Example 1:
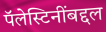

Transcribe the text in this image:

पॅलेस्टिनींबद्दल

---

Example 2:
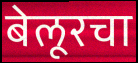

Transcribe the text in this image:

बेलूरचा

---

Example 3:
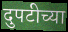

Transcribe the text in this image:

दुपटीच्या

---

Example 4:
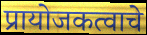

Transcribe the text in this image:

प्रायोजकत्वाचे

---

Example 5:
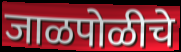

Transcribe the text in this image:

जाळपोळीचे